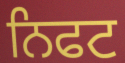
ਨਿਫਟ